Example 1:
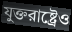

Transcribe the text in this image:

যুক্তরাষ্ট্রেও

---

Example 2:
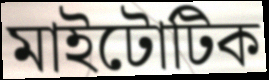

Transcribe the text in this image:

মাইটোটিক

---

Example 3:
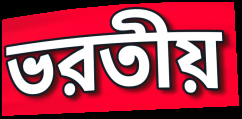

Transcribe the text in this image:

ভরতীয়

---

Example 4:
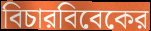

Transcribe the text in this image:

বিচারবিবেকের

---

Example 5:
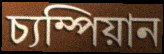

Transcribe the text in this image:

চ্যম্পিয়ান